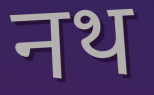
नथ